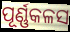
ପୂର୍ଣ୍ଣକଳସ